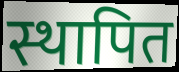
स्थापित